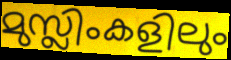
മുസ്ലിംകളിലും